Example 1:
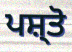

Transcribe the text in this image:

ਪਸ਼੍ਤੋ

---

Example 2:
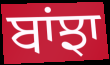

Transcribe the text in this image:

ਬਾਂਝਾ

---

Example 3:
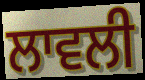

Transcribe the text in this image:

ਲਾਵਲੀ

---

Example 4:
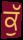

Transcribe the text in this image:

ਕੁੱ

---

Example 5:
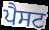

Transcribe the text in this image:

ਪੈਸਟ